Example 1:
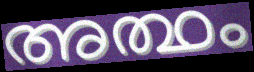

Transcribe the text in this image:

അത്ഥം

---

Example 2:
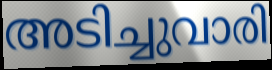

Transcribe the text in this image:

അടിച്ചുവാരി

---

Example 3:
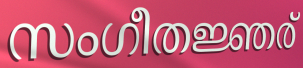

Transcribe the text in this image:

സംഗീതജ്ഞര്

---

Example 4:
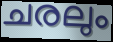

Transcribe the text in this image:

ചരലും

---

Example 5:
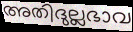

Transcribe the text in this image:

അതിദുല്ലഭാവ